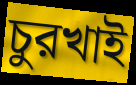
চুরখাই